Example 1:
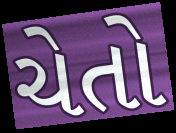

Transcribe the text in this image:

ચેતો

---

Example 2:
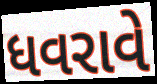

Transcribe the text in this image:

ધવરાવે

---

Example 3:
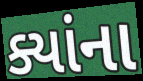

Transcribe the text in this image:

ક્યાંના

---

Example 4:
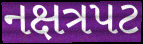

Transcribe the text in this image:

નક્ષત્રપટ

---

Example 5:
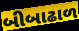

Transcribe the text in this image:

બીબાઢાળ